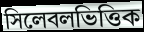
সিলেবলভিত্তিক